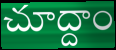
చూద్దాం